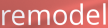
remodel